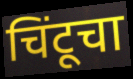
चिंटूचा